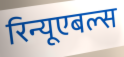
रिन्यूएबल्स